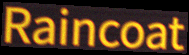
Raincoat